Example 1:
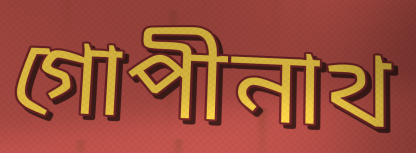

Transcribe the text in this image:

গোপীনাথ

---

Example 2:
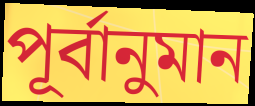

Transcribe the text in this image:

পূৰ্বানুমান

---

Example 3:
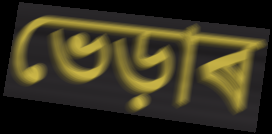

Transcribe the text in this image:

ভেড়াৰ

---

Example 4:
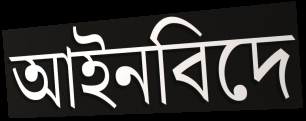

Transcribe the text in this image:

আইনবিদে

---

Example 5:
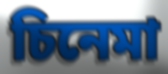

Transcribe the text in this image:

চিনেমা